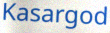
Kasargod